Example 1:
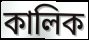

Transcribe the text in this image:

কালিক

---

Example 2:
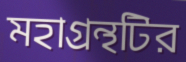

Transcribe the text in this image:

মহাগ্রন্থটির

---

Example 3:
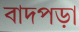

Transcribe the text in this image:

বাদপড়া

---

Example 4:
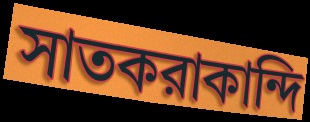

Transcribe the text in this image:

সাতকরাকান্দি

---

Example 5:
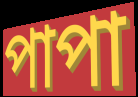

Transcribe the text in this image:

পাপা